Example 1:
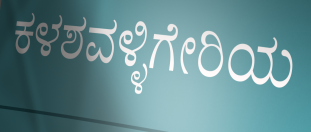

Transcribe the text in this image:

ಕಳಶವಳ್ಳಿಗೇರಿಯ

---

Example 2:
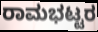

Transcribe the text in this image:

ರಾಮಭಟ್ಟರ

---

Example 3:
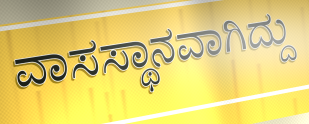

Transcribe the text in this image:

ವಾಸಸ್ಥಾನವಾಗಿದ್ದು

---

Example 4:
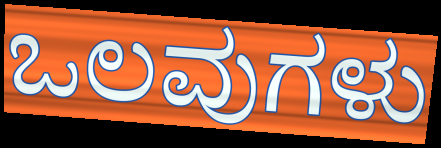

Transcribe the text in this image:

ಒಲವುಗಳು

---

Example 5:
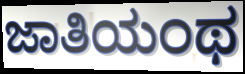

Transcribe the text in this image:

ಜಾತಿಯಂಥ